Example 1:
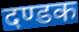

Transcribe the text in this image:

दण्डक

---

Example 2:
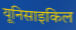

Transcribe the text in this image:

यूनिसाइकिल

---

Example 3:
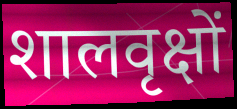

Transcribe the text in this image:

शालवृक्षों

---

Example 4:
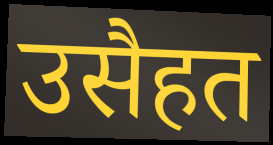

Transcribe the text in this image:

उसैहत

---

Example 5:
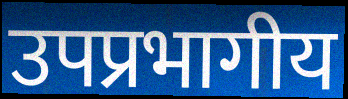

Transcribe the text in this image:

उपप्रभागीय